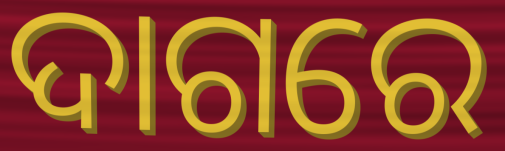
ଦାଗରେ